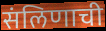
संलिणाची